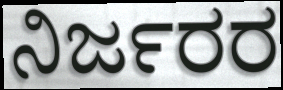
ನಿರ್ಜರರ